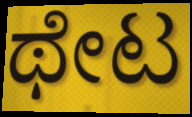
ಥೇಟ